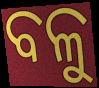
ବଳୁ